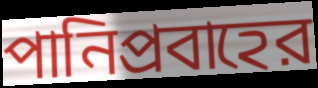
পানিপ্রবাহের